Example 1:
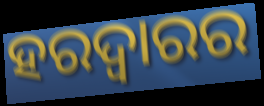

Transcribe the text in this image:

ହରଦ୍ୱାରର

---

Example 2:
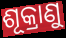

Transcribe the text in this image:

ଶୂକ୍ରାଣୁ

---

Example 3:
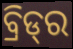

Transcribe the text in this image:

ବ୍ରିଡ୍‌ର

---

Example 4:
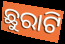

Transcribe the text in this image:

ଛୁରାଟି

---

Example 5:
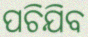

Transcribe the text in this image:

ପଚିଯିବ